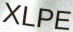
XLPE